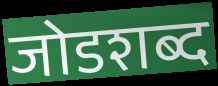
जोडशब्द